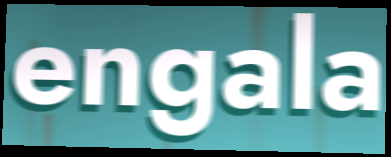
engala